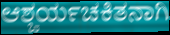
ಆಶ್ಚರ್ಯಚಕಿತನಾಗಿ